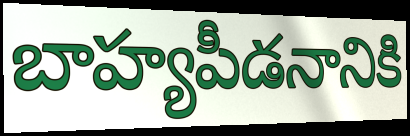
బాహ్యపీడనానికి